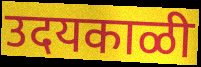
उदयकाळी